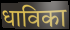
धाविका